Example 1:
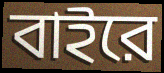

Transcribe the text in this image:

বাইরে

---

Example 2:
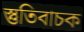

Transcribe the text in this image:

স্তুতিবাচক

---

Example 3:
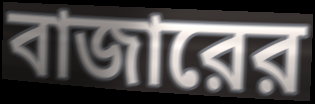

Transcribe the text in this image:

বাজারের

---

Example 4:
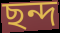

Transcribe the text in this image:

ছন্দ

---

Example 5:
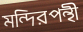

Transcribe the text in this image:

মন্দিরপন্থী